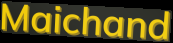
Maichand